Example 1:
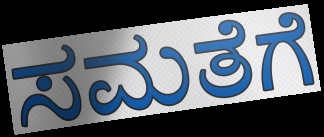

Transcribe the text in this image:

ಸಮತೆಗೆ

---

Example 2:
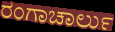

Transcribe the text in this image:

ರಂಗಾಚಾರ್ಲು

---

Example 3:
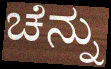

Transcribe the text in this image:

ಚೆನ್ನು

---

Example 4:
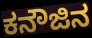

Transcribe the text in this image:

ಕನೌಜಿನ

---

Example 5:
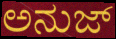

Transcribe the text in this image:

ಅನುಜ್